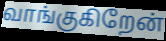
வாங்குகிறேன்